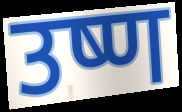
उष्ण